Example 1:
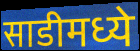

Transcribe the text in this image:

साडीमध्ये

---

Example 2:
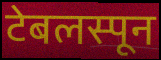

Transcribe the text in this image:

टेबलस्पून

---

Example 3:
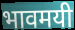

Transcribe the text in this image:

भावमयी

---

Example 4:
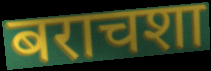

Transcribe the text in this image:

बराचशा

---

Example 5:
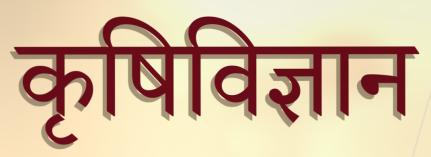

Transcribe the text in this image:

कृषिविज्ञान